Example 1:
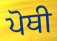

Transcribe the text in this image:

ਪੋਥੀ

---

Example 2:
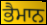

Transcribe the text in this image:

ਭੈਮਾਨ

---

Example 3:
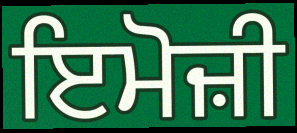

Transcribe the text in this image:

ਇਮੋਜ਼ੀ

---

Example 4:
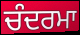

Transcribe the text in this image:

ਚੰਦਰਮਾ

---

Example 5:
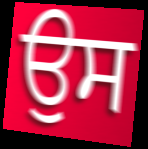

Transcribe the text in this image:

ਉਸ